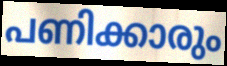
പണിക്കാരും